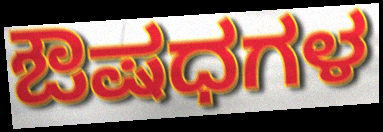
ಔಷಧಗಳ